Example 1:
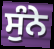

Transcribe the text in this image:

ਸੁੰਨੇ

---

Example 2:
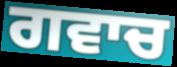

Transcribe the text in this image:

ਗਵਾਚ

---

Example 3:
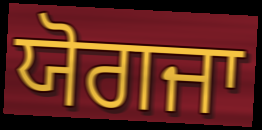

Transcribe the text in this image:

ਯੋਗਜਾ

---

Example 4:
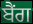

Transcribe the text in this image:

ਬੈਂਗ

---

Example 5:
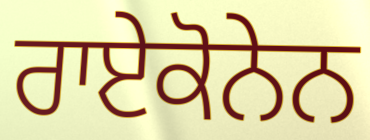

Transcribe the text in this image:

ਰਾਏਕੋਨੇਨ